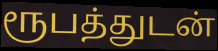
ரூபத்துடன்